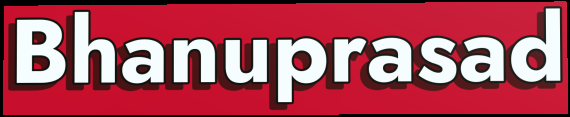
Bhanuprasad